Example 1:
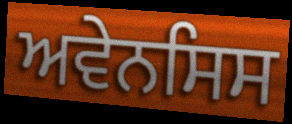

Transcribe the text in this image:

ਅਵੇਨਸਿਸ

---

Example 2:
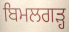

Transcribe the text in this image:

ਬਿਮਲਗੜ੍ਹ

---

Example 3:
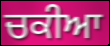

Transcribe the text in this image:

ਚਕੀਆ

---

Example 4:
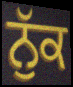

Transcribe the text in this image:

ਨੁੱਕ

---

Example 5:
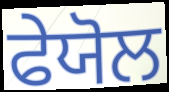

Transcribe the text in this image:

ਫੇਯੋਲ